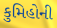
કુમિહોની